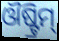
ଔଷ୍ଟ୍ରିମ୍